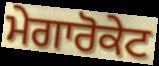
ਮੇਗਾਰੋਕੇਟ